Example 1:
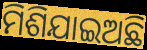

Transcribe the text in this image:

ମିଶିଯାଇଅଛି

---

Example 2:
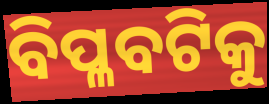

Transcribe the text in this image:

ବିପ୍ଳବଟିକୁ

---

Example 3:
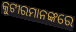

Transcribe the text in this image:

କୁଟୀରମାନଙ୍କରେ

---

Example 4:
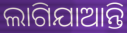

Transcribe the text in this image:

ଲାଗିଯାଆନ୍ତି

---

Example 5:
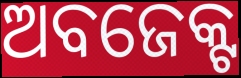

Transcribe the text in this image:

ଅବଜେକ୍ଟ